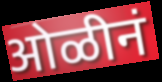
ओळीनं